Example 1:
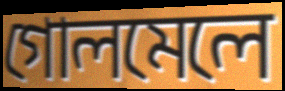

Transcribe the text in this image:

গোলমেলে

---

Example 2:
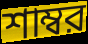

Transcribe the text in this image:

শাম্বর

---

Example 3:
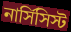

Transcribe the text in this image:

নার্সিসিস্ট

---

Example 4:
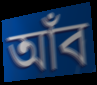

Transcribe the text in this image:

আঁব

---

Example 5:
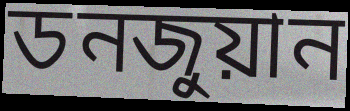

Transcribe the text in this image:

ডনজুয়ান